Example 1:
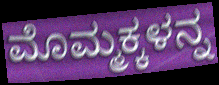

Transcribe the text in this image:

ಮೊಮ್ಮಕ್ಕಳನ್ನ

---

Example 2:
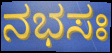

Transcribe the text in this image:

ನಭಸಃ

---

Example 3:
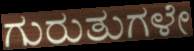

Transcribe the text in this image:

ಗುರುತುಗಳೇ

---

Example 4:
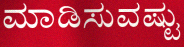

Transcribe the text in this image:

ಮಾಡಿಸುವಷ್ಟು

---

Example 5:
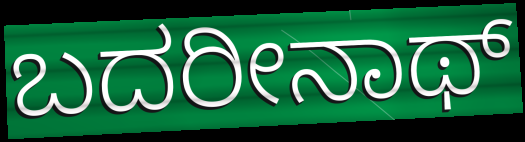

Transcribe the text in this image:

ಬದರೀನಾಥ್